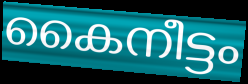
കൈനീട്ടം